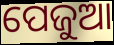
ପେଜୁଆ